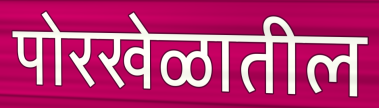
पोरखेळातील